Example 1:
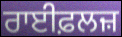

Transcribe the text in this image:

ਰਾਈਫ਼ਲਜ਼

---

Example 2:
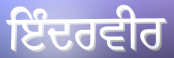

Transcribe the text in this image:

ਇੰਦਰਵੀਰ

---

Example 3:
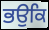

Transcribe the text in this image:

ਭਉਕਿ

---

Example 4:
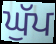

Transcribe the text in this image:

ਘੁੱਪ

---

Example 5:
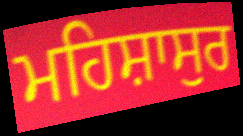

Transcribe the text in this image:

ਮਹਿਸ਼ਾਸੁਰ